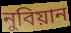
নুবিয়ান